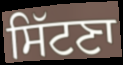
ਸਿੱਟਣਾ